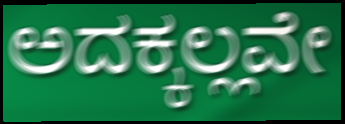
ಅದಕ್ಕಲ್ಲವೇ